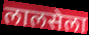
लालसेला